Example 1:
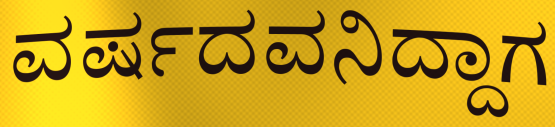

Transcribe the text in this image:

ವರ್ಷದವನಿದ್ದಾಗ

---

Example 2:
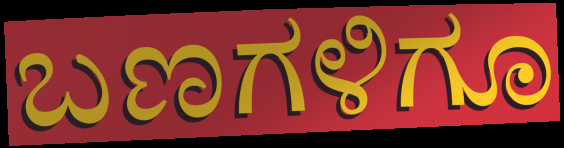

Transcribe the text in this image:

ಬಣಗಳಿಗೂ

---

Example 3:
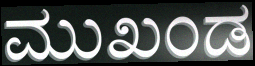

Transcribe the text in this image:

ಮುಖಂಡ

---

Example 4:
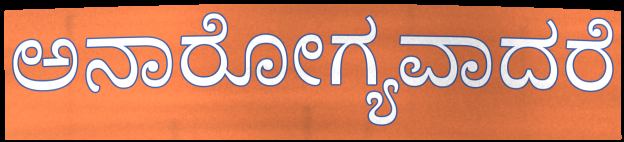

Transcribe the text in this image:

ಅನಾರೋಗ್ಯವಾದರೆ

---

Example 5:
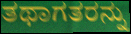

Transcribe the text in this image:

ತಥಾಗತರನ್ನು